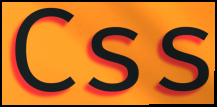
Css